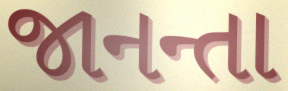
જાનન્તા